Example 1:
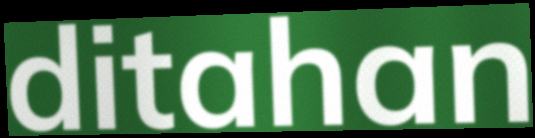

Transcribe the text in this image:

ditahan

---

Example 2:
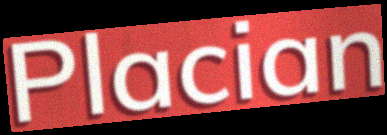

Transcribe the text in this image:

Placian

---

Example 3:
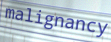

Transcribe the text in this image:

malignancy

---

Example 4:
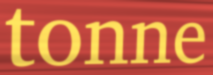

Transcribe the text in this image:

tonne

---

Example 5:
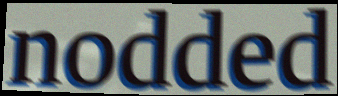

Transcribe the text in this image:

nodded